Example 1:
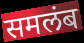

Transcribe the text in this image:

समलंब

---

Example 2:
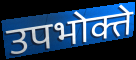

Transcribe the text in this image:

उपभोक्ते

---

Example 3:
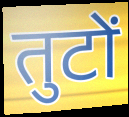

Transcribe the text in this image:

तुटों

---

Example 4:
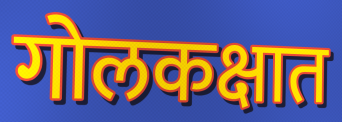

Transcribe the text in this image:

गोलकक्षात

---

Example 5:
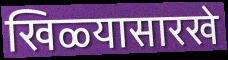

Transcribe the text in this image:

खिळ्यासारखे